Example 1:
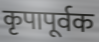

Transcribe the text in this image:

कृपापूर्वक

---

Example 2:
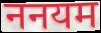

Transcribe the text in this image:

ननयम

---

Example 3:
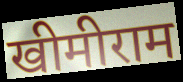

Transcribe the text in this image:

खीमीराम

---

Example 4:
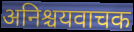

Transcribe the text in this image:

अनिश्चयवाचक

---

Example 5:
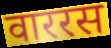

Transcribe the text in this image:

वाररस